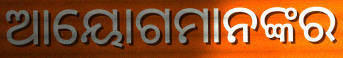
ଆୟୋଗମାନଙ୍କର